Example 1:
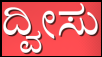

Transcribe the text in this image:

ದ್ವೀಸು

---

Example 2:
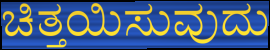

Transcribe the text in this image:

ಚಿತ್ತಯಿಸುವುದು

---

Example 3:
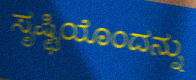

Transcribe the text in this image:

ಸೃಷ್ಟಿಯೊಂದನ್ನು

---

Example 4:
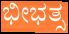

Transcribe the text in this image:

ಭೀಭತ್ಸ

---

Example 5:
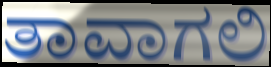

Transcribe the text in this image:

ತಾವಾಗಲಿ